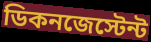
ডিকনজেস্টেন্ট